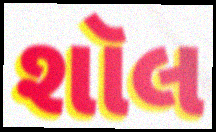
શૉલ